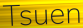
Tsuen